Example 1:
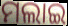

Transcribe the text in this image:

ମଲାଇ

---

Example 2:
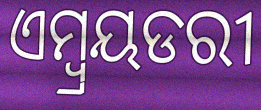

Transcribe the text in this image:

ଏମ୍ବ୍ରୟଡରୀ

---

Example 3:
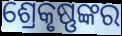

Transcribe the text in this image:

ଶ୍ରେକୃଷ୍ଣଙ୍କର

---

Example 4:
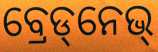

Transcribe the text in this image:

ବ୍ରେଡ୍‌ନେଭ୍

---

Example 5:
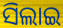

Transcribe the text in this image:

ସିଲାଇ